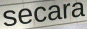
secara